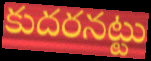
కుదరనట్టు